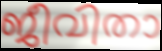
ജീവിതാ